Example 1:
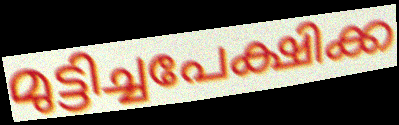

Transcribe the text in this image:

മുട്ടിച്ചപേക്ഷിക്ക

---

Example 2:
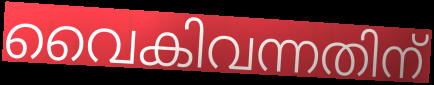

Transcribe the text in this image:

വൈകിവന്നതിന്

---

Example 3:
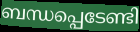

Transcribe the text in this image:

ബന്ധപ്പെടേണ്ടി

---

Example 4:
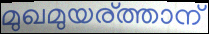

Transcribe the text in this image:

മുഖമുയര്ത്താന്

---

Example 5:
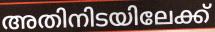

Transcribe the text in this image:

അതിനിടയിലേക്ക്